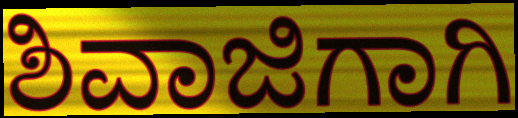
ಶಿವಾಜಿಗಾಗಿ